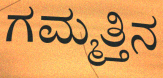
ಗಮ್ಮತ್ತಿನ